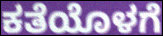
ಕತೆಯೊಳಗೆ